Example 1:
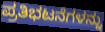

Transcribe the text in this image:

ಪ್ರತಿಭಟನೆಗಳನ್ನು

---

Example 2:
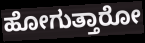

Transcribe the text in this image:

ಹೋಗುತ್ತಾರೋ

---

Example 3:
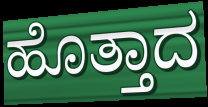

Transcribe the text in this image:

ಹೊತ್ತಾದ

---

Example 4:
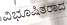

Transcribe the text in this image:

ವಿಭೂಷಿತರಾದ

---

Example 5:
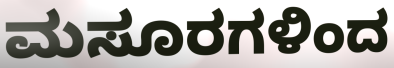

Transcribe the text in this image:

ಮಸೂರಗಳಿಂದ